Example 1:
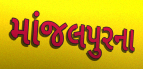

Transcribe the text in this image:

માંજલપુરના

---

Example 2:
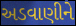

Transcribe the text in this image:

અડવાણીને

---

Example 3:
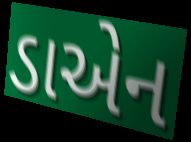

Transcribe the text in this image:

ડાએન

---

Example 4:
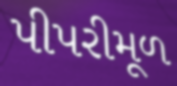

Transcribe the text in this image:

પીપરીમૂળ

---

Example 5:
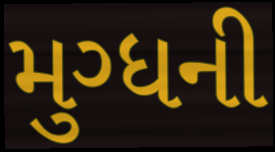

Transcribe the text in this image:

મુગ્ધની